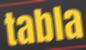
tabla